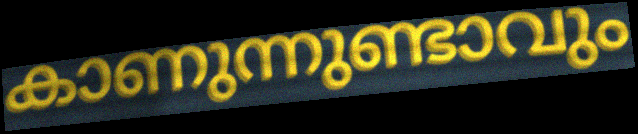
കാണുന്നുണ്ടാവും